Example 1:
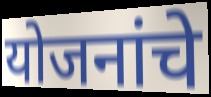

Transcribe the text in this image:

योजनांचे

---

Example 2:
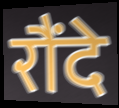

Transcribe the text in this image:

रौंदे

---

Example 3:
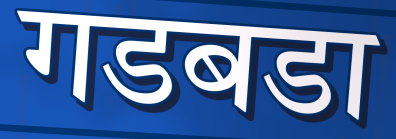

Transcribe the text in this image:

गडबडा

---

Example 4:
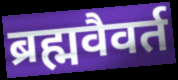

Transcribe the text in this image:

ब्रह्मवैवर्त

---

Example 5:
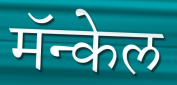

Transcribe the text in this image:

मॅन्केल